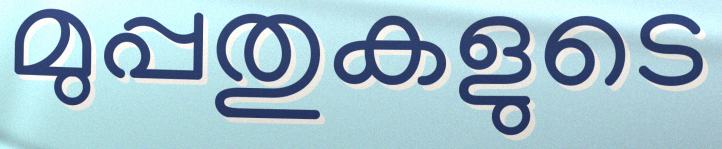
മുപ്പതുകളുടെ